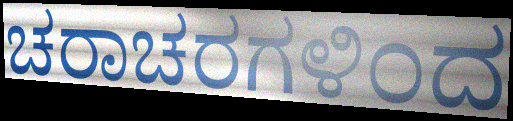
ಚರಾಚರಗಳಿಂದ